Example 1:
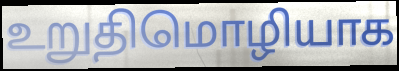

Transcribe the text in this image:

உறுதிமொழியாக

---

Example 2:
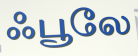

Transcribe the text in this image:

ஃபூலே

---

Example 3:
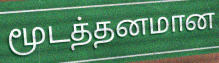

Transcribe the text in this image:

மூடத்தனமான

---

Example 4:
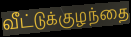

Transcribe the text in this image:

வீட்டுக்குழந்தை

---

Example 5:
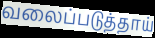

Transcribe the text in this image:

வலைப்படுத்தாய்